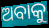
ଅବାକୁ